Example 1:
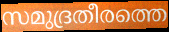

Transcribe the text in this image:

സമുദ്രതീരത്തെ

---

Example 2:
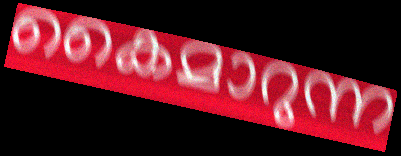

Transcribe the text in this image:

കൈമാറുന്ന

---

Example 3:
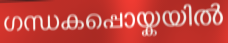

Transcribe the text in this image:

ഗന്ധകപ്പൊയ്കയിൽ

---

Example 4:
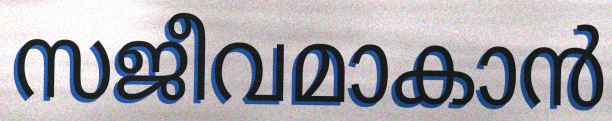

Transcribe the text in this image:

സജീവമാകാൻ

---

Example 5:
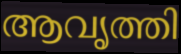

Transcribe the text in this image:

ആവൃത്തി